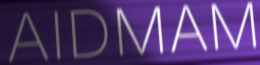
AIDMAM